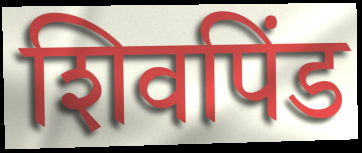
शिवपिंड